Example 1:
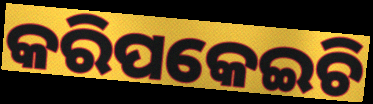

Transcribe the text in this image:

କରିପକେଇଚି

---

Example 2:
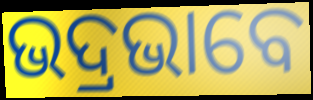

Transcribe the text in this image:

ଭଦ୍ରଭାବେ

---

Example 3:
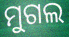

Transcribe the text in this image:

ମୁଗଲ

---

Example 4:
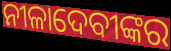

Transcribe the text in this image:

ନୀଳାଦେବୀଙ୍କର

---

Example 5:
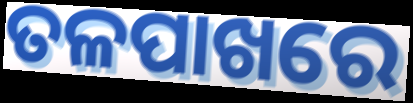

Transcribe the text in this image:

ତଳପାଖରେ